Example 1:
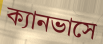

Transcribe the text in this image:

ক্যানভাসে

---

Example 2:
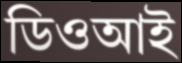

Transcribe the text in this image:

ডিওআই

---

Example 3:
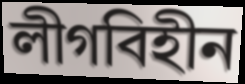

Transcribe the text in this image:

লীগবিহীন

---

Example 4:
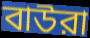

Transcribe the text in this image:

বাউরা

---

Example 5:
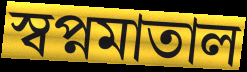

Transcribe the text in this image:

স্বপ্নমাতাল